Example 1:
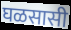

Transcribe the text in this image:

घळसासी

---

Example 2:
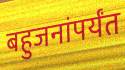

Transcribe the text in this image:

बहुजनांपर्यंत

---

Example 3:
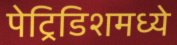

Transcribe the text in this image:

पेट्रिडिशमध्ये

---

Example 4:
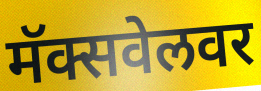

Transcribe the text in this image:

मॅक्सवेलवर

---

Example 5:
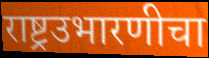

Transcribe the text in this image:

राष्ट्रउभारणीचा